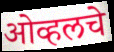
ओव्हलचे